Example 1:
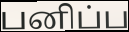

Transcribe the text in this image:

பனிப்ப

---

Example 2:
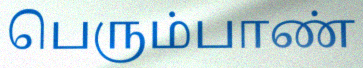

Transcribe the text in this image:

பெரும்பாண்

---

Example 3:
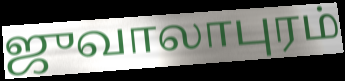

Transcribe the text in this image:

ஜுவாலாபுரம்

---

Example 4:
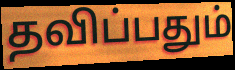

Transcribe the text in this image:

தவிப்பதும்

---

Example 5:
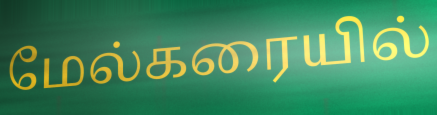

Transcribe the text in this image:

மேல்கரையில்